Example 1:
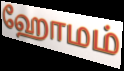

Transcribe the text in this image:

ஹோமம்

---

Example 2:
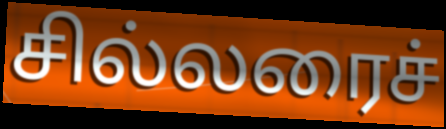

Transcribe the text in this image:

சில்லரைச்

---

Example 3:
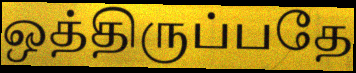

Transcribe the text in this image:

ஒத்திருப்பதே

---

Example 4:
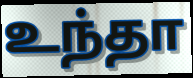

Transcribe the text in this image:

உந்தா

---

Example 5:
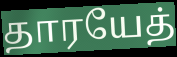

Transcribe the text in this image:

தாரயேத்